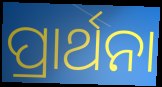
ପ୍ରାର୍ଥନା